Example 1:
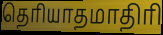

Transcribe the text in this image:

தெரியாதமாதிரி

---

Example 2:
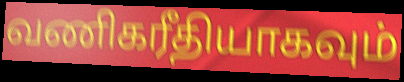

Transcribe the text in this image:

வணிகரீதியாகவும்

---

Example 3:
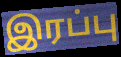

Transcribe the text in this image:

இரப்பு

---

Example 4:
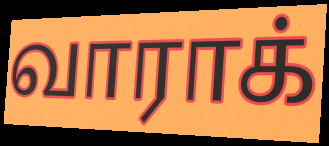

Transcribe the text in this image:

வாராக்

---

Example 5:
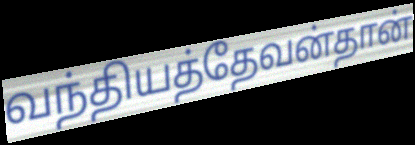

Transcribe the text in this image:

வந்தியத்தேவன்தான்